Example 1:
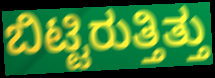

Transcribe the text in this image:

ಬಿಟ್ಟಿರುತ್ತಿತ್ತು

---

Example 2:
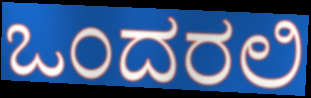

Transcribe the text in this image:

ಒಂದರಲಿ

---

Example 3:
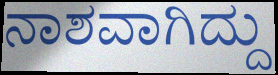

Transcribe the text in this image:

ನಾಶವಾಗಿದ್ದು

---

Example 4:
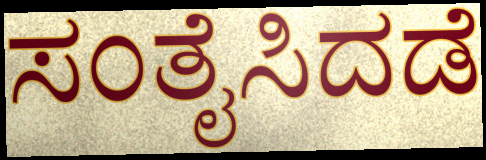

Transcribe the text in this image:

ಸಂತೈಸಿದಡೆ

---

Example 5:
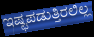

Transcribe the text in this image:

ಇಷ್ಟಪಡುತ್ತಿರಲಿಲ್ಲ